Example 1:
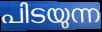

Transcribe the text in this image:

പിടയുന്ന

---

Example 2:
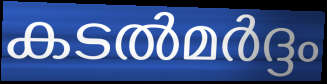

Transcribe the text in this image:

കടൽമർദ്ദം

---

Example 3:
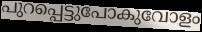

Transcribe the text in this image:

പുറപ്പെട്ടുപോകുവോളം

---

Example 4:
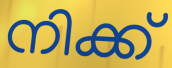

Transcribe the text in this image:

നിക്ക്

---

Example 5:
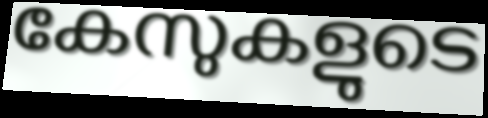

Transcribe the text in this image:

കേസുകളുടെ